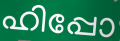
ഹിപ്പോ